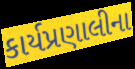
કાર્યપ્રણાલીના